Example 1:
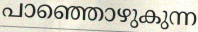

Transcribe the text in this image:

പാഞ്ഞൊഴുകുന്ന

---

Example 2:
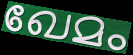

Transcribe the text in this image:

ഖേമം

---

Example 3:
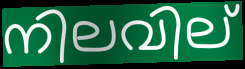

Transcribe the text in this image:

നിലവില്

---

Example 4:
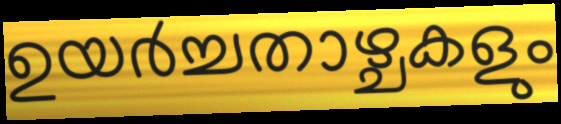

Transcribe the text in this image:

ഉയർച്ചതാഴ്ചകളും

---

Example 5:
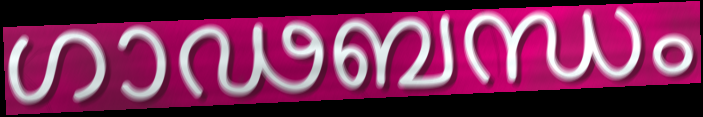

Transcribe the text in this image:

ഗാഢബന്ധം